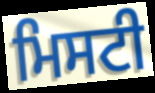
ਮਿਸਟੀ